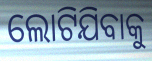
ଲୋଟିଯିବାକୁ